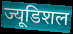
ज्यूडिशल